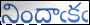
నిందాఁకఁ